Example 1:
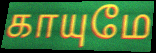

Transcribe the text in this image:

காயுமே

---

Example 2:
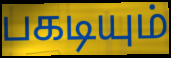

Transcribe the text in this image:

பகடியும்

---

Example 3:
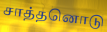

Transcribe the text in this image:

சாத்தனொடு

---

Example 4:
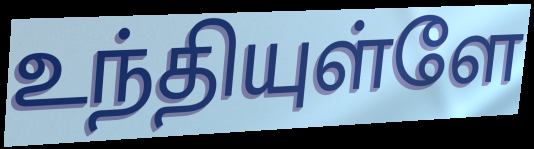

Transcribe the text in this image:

உந்தியுள்ளே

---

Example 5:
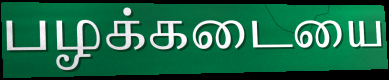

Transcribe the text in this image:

பழக்கடையை